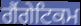
ਗੈਂਗੇਟਿਕਮ